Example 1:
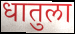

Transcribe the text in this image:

धातुला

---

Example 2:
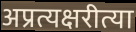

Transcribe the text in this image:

अप्रत्यक्षरीत्या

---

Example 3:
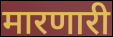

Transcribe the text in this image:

मारणारी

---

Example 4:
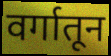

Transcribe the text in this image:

वर्गातून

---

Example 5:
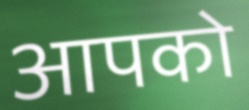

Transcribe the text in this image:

आपको